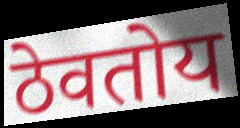
ठेवतोय